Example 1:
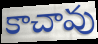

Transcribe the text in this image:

కాచావు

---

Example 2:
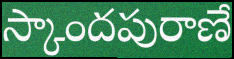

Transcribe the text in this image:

స్కాందపురాణే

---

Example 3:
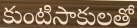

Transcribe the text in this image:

కుంటిసాకులతో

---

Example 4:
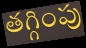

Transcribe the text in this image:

తగ్గింపు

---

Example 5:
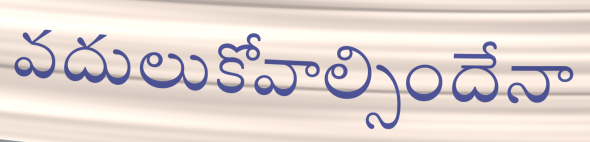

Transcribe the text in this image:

వదులుకోవాల్సిందేనా